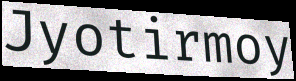
Jyotirmoy